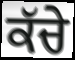
ਕੱਚੇ